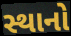
સ્થાનો